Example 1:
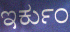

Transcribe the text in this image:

ಇರ್ಕುಂ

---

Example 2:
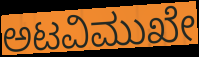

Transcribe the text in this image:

ಅಟವಿಮುಖೇ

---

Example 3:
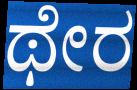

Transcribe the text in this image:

ಥೇರ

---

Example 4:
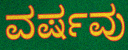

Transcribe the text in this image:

ವರ್ಷವು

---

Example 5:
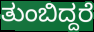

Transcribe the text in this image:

ತುಂಬಿದ್ದರೆ